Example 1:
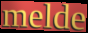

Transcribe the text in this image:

melde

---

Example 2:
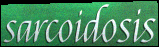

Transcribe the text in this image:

sarcoidosis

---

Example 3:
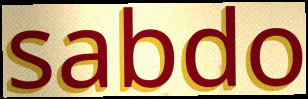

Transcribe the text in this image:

sabdo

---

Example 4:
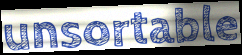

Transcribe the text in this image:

unsortable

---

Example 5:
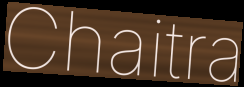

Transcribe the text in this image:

Chaitra